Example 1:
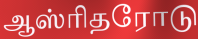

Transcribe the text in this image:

ஆஸ்ரிதரோடு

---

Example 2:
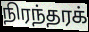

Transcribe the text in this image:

நிரந்தரக்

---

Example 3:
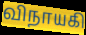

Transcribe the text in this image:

விநாயகி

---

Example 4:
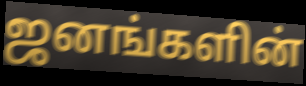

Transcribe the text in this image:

ஜனங்களின்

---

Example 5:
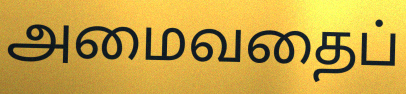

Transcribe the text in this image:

அமைவதைப்